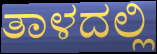
ತಾಳದಲ್ಲಿ